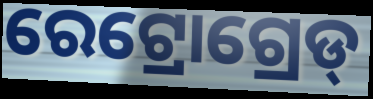
ରେଟ୍ରୋଗ୍ରେଡ୍